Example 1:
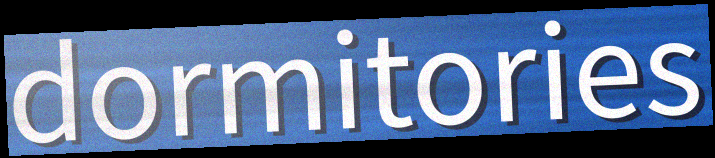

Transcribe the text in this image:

dormitories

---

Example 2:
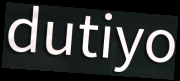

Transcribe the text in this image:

dutiyo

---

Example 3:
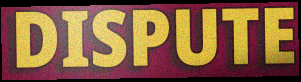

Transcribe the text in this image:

DISPUTE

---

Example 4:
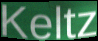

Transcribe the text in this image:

Keltz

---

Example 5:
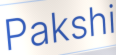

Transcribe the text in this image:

Pakshi